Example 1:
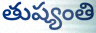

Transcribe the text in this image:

తుష్యంతి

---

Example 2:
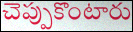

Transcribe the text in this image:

చెప్పుకొంటారు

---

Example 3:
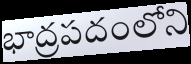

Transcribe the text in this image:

భాద్రపదంలోని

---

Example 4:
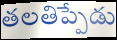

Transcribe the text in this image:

తలతిప్పేడు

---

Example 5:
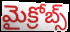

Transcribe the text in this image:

మైక్రోబ్స్